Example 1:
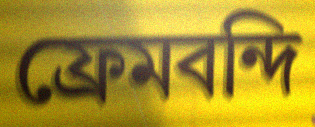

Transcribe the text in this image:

ফ্রেমবন্দি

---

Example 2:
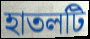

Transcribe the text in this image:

হাতলটি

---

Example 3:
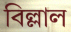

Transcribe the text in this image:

বিল্লাল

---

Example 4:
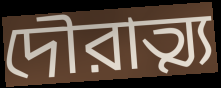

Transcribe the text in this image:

দৌরাত্ম্য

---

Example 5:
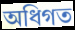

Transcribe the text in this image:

অধিগত